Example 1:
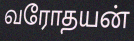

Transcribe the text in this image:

வரோதயன்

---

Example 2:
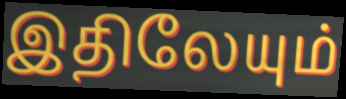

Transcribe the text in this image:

இதிலேயும்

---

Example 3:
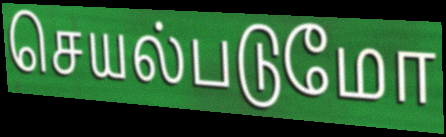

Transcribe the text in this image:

செயல்படுமோ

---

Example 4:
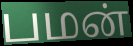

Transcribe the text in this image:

பமன்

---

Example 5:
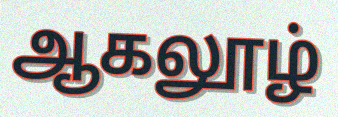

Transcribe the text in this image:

ஆகலூழ்